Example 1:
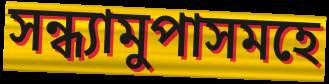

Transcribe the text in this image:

সন্ধ্যামুপাসমহে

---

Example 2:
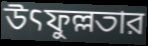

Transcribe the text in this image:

উৎফুল্লতার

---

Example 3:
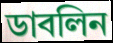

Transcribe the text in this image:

ডাবলিন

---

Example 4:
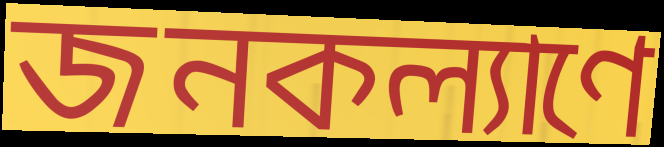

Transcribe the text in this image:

জনকল্যাণে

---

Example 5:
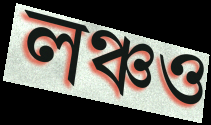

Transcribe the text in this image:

লঞ্চও